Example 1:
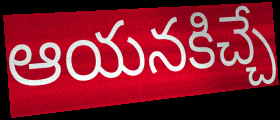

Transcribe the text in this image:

ఆయనకిచ్చే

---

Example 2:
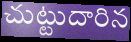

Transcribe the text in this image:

చుట్టుదారిన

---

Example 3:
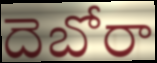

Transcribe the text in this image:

దెబోరా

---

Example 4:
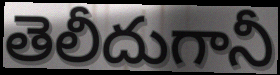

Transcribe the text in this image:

తెలీదుగానీ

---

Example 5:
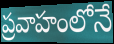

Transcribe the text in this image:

ప్రవాహంలోనే